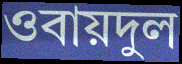
ওবায়দুল